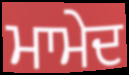
ਮਾਮੇਦ